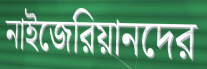
নাইজেরিয়ানদের